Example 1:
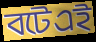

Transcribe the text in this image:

বটেএই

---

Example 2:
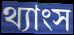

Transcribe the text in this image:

থ্যাংস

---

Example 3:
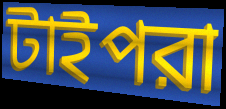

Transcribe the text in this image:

টাইপরা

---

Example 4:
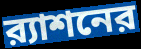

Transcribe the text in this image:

র‍্যাশনের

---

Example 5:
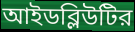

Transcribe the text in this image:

আইডব্লিউটির